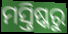
ମସ୍ତିଷ୍କରୁ